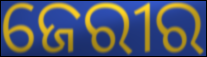
ଜେରୀର